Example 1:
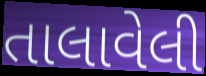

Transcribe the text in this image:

તાલાવેલી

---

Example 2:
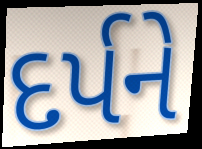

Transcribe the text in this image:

દર્પને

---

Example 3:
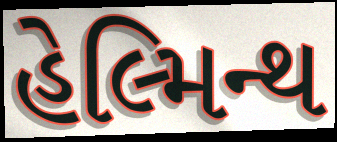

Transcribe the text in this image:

હેલ્મિન્થ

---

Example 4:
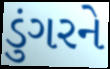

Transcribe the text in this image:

ડુંગરને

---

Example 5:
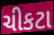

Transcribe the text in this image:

ચીકટા